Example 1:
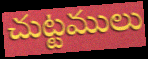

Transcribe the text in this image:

చుట్టములు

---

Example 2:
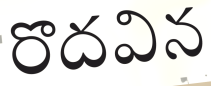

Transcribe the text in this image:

రొదవిన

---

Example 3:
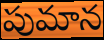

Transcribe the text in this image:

పుమాన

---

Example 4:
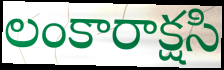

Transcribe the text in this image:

లంకారాక్షసి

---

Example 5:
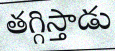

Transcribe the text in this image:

తగ్గిస్తాడు